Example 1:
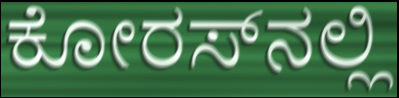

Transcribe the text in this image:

ಕೋರಸ್‌ನಲ್ಲಿ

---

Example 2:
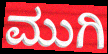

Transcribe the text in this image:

ಮುಗಿ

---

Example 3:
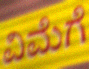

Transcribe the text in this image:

ವಿಮೆಗೆ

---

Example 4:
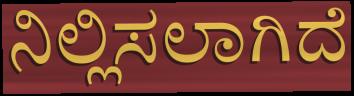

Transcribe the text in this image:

ನಿಲ್ಲಿಸಲಾಗಿದೆ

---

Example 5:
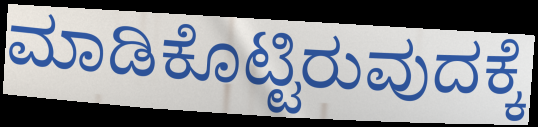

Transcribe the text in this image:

ಮಾಡಿಕೊಟ್ಟಿರುವುದಕ್ಕೆ